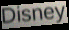
Disney